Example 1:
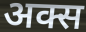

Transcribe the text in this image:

अक्स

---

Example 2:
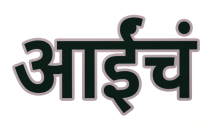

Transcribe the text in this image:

आईंचं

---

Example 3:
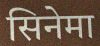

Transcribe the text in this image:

सिनेमा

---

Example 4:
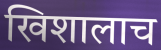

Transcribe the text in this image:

खिशालाच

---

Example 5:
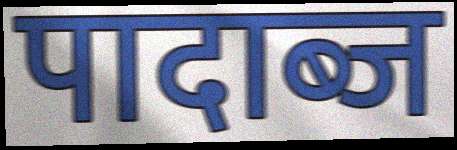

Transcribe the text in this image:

पादाब्ज